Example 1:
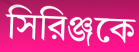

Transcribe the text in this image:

সিরিঞ্জকে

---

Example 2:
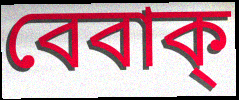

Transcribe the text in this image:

বেবাক্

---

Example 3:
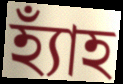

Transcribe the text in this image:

হ্যাঁহ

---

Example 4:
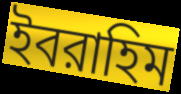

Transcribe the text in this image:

ইবরাহিম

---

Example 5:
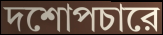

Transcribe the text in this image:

দশোপচারে